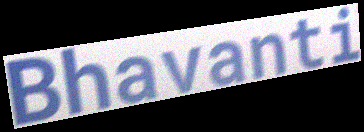
Bhavanti